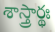
శాస్త్రార్థః